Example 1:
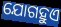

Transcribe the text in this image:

ଯୋଗହୁଏ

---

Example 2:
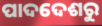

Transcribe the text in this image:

ପାଦଦେଶରୁ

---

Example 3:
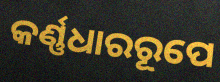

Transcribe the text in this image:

କର୍ଣ୍ଣଧାରରୂପେ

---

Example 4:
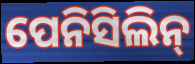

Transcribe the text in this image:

ପେନିସିଲିନ୍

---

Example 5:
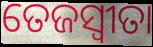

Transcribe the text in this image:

ତେଜସ୍ଵୀତା